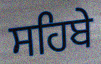
ਸਹਿਬੇ